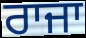
ਰਾਜਾ